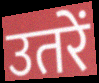
उतरें